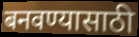
बनवण्यासाठी